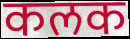
कलक